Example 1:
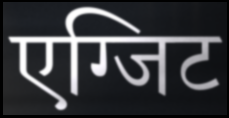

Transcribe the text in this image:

एग्जिट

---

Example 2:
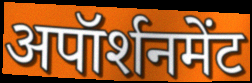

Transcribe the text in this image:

अपॉर्शनमेंट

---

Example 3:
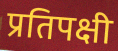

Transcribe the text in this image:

प्रतिपक्षी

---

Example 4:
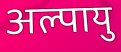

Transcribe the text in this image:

अल्पायु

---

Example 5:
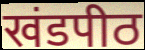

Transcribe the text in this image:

खंडपीठ